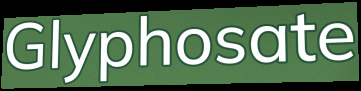
Glyphosate